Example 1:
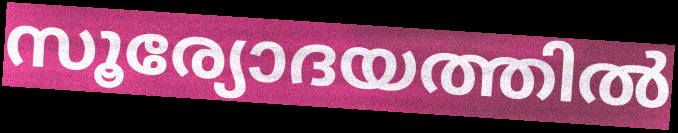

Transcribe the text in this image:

സൂര്യോദയത്തിൽ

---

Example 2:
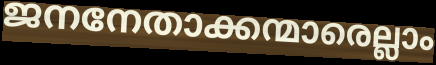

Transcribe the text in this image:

ജനനേതാക്കന്മാരെല്ലാം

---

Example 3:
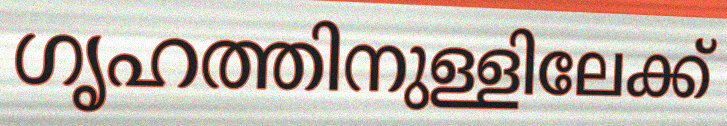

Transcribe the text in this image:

ഗൃഹത്തിനുള്ളിലേക്ക്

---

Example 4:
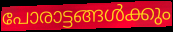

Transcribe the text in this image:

പോരാട്ടങ്ങൾക്കും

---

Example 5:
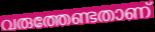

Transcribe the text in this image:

വരുത്തേണ്ടതാണ്